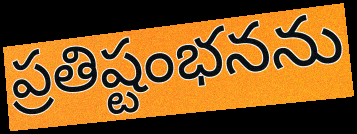
ప్రతిష్టంభనను